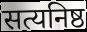
सत्यनिष्ठ